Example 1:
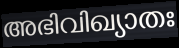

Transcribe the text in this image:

അഭിവിഖ്യാതഃ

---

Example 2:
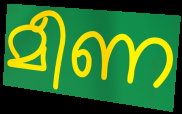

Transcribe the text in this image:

മീണ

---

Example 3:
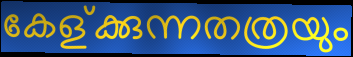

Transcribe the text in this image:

കേള്ക്കുന്നതത്രയും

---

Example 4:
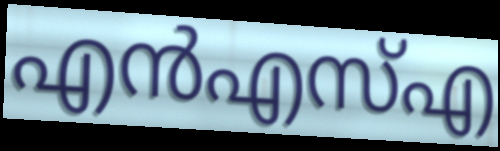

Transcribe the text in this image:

എൻഎസ്എ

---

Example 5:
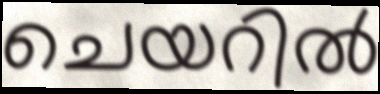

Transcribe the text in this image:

ചെയറിൽ